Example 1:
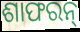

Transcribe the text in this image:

ଶାଫରନ୍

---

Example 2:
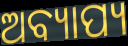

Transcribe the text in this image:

ଅବ୍ୟାପ୍ୟ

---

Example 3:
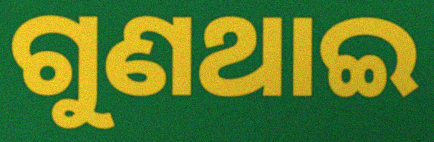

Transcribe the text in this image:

ଗୁଣଥାଇ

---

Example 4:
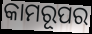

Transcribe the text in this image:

କାମରୂପର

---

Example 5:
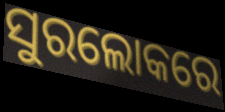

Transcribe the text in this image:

ସୁରଲୋକରେ